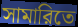
সামারিতে